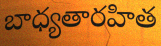
బాధ్యతారహిత